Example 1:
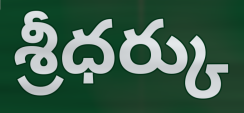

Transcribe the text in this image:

శ్రీధర్కు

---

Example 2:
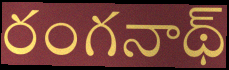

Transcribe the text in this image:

రంగనాథ్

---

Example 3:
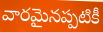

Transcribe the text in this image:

వారమైనప్పటికీ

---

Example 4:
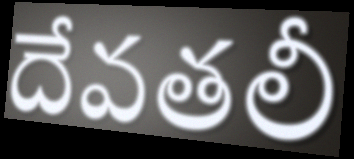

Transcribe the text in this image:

దేవతలీ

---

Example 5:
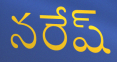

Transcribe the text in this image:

నరేష్